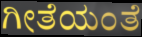
ಗೀತೆಯಂತೆ